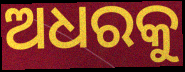
ଅଧରକୁ